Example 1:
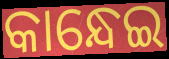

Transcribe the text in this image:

କାନ୍ଧେଇ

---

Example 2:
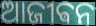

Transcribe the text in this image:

ଆଜୀଵନ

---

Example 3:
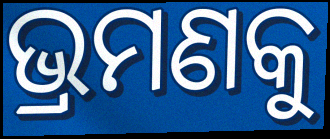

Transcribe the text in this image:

ଭ୍ରମଣକୁ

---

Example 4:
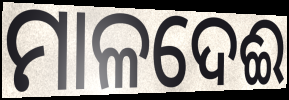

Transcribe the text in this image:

ମାଳଦେଈ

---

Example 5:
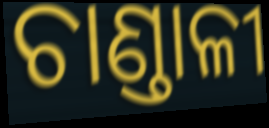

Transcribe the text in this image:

ଚାଣ୍ଡାଳୀ